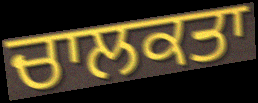
ਚਾਲਕਤਾ